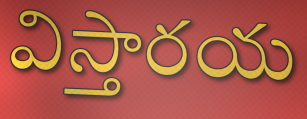
విస్తారయ